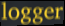
logger